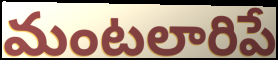
మంటలారిపే